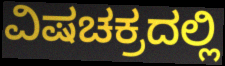
ವಿಷಚಕ್ರದಲ್ಲಿ